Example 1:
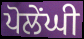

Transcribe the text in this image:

ਪੋਲੇਂਘੀ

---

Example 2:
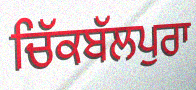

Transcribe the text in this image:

ਚਿੱਕਬੱਲਪੁਰਾ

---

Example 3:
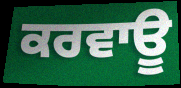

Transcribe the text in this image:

ਕਰਵਾਊ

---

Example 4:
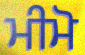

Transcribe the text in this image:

ਮੀਮੋ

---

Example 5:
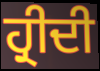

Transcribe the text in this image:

ਹ੍ਰੀਦੀ